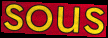
sous